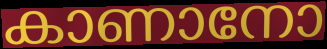
കാണാനോ